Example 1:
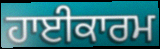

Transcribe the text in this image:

ਹਾਈਕਾਰਮ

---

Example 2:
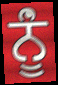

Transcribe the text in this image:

ਨੂਂੰ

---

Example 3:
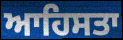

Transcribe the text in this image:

ਆਹਿਸਤਾ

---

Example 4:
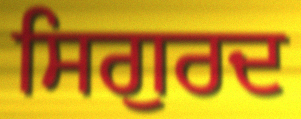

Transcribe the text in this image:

ਸਿਗੁਰਦ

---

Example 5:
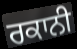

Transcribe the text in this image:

ਰਕਾਨੀ